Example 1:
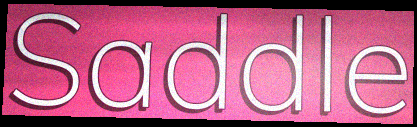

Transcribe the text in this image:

Saddle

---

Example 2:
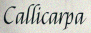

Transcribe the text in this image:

Callicarpa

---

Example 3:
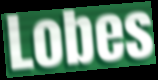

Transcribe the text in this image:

Lobes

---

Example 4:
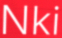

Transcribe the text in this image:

Nki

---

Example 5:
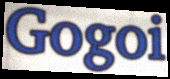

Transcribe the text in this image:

Gogoi